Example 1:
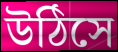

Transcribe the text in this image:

উঠিসে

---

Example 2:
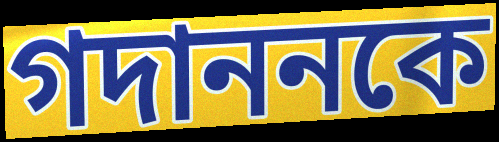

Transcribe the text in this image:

গদাননকে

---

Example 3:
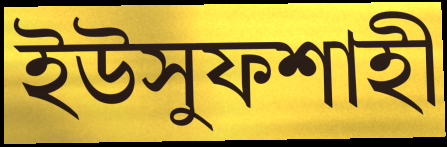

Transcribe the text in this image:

ইউসুফশাহী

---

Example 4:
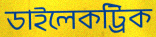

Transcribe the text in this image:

ডাইলেকট্রিক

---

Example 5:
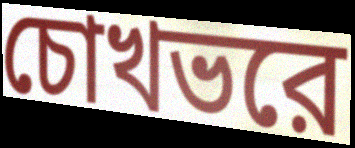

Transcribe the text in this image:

চোখভরে